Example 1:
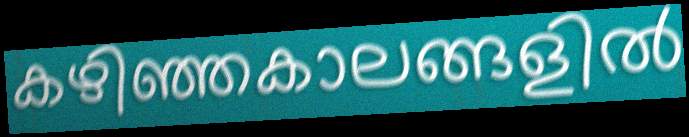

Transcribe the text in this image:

കഴിഞ്ഞകാലങ്ങളിൽ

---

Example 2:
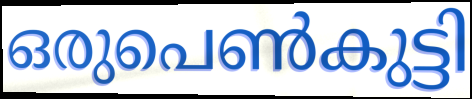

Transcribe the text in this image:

ഒരുപെൺകുട്ടി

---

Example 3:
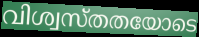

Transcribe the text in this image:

വിശ്വസ്തതയോടെ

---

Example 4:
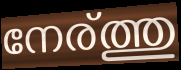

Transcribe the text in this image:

നേര്ത്തു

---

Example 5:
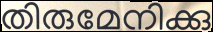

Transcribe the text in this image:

തിരുമേനിക്കു